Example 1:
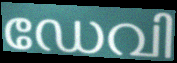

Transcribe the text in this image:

ഡേവി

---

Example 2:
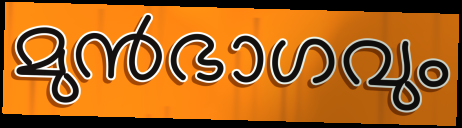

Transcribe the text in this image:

മുൻഭാഗവും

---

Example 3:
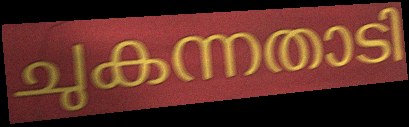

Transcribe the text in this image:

ചുകന്നതാടി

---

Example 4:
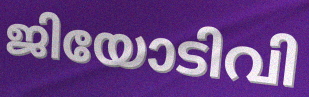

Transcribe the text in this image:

ജിയോടിവി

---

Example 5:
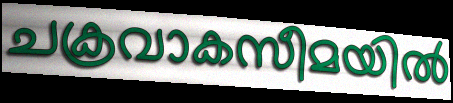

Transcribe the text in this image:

ചക്രവാകസീമയിൽ